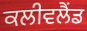
ਕਲੀਵਲੈਂਡ